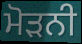
ਮੋੜਨੀ